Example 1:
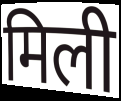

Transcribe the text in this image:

मिली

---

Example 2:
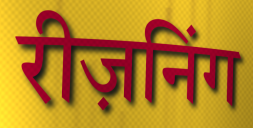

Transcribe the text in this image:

रीज़निंग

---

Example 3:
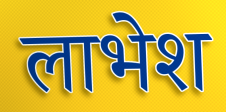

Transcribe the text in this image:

लाभेश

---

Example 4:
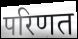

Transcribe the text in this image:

परिणत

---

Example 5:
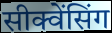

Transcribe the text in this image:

सीक्वेंसिंग